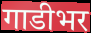
गाडीभर